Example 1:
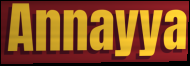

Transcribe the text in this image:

Annayya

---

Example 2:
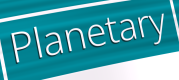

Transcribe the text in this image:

Planetary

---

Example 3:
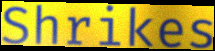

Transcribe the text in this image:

Shrikes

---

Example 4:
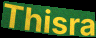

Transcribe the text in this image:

Thisra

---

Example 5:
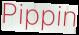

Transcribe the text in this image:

Pippin